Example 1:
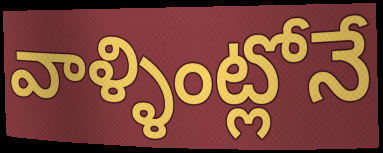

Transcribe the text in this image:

వాళ్ళింట్లోనే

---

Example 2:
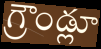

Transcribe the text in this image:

గ్రౌండ్లూ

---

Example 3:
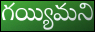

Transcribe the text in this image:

గయ్యిమని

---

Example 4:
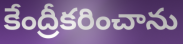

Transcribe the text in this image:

కేంద్రీకరించాను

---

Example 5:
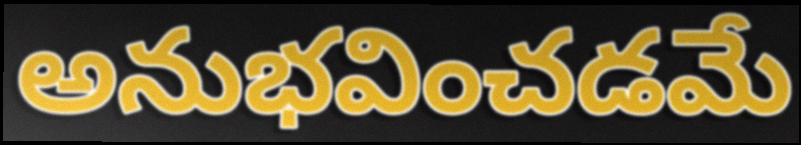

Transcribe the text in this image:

అనుభవించడమే